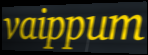
vaippum